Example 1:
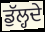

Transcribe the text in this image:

ਡੁੱਲ੍ਹਦੇ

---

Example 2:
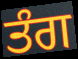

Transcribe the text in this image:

ਤੰਗ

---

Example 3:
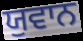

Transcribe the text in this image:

ਯੁਵਾਨ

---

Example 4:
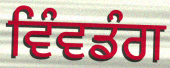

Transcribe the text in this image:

ਵਿੰਵਡੰਗ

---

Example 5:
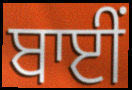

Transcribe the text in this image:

ਬਾਈਂ